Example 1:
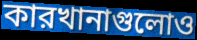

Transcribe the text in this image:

কারখানাগুলোও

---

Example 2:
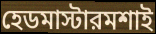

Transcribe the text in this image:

হেডমাস্টারমশাই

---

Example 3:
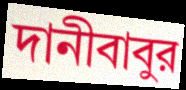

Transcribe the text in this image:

দানীবাবুর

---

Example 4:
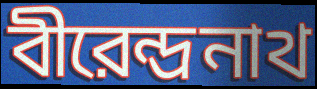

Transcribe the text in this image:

বীরেন্দ্রনাথ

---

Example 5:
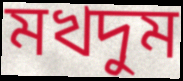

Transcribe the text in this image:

মখদুম